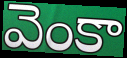
వెంకా